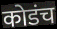
कोडंच